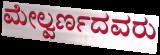
ಮೇಲ್ವರ್ಣದವರು